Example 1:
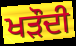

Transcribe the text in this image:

ਖੜੌਦੀ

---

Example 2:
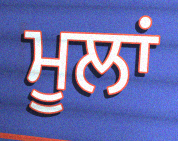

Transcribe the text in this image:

ਮੂਲਾਂ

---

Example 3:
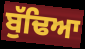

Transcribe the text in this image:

ਬੁੱਢਿਆ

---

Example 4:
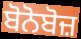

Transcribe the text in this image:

ਬੋਨੋਬੋਜ਼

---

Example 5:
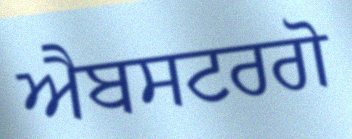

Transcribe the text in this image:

ਐਬਸਟਰਗੋ